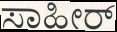
ಸಾಹೀರ್